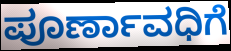
ಪೂರ್ಣಾವಧಿಗೆ